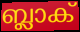
ബ്ലാക്